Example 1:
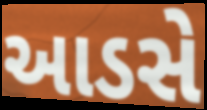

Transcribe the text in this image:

આડસે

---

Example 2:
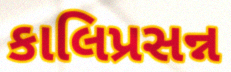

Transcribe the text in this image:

કાલિપ્રસન્ન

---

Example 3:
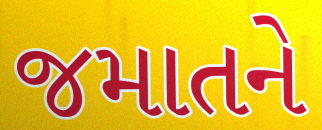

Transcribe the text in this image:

જમાતને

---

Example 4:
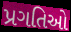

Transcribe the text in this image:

પ્રગતિઓ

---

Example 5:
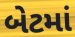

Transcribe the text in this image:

બેટમાં